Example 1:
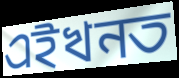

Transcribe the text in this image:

এইখনত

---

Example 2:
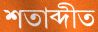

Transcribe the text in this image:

শতাব্দীত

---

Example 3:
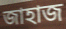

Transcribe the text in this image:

জাহাজ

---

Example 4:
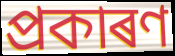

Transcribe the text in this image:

প্ৰকাৰণ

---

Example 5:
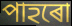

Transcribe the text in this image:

পাহৰো